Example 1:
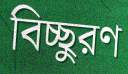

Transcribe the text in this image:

বিচ্ছুরণ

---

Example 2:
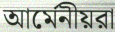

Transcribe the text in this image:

আর্মেনীয়রা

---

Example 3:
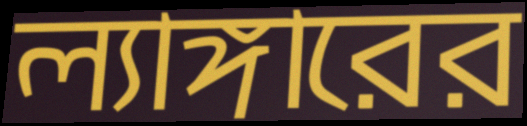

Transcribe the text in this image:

ল্যাঙ্গারের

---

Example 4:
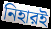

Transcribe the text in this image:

নিহারই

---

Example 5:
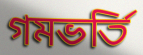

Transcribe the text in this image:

গমভর্তি